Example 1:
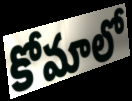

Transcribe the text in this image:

కోమాలో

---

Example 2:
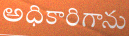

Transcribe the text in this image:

అధికారిగాను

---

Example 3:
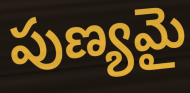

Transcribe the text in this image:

పుణ్యమై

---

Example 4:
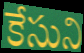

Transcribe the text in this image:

కేసుని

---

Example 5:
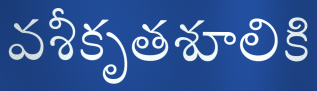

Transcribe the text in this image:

వశీకృతశూలికి